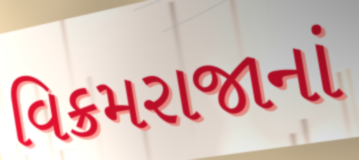
વિક્રમરાજાનાં